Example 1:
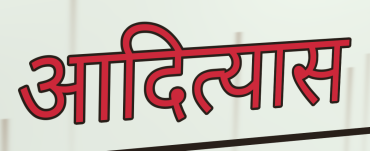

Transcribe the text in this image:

आदित्यास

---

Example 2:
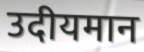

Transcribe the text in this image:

उदीयमान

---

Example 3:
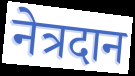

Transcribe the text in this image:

नेत्रदान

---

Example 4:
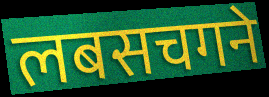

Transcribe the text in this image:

लबसचगने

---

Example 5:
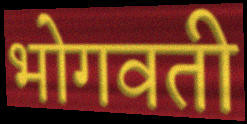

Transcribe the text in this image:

भोगवती